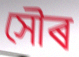
সৌৰ